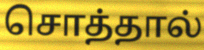
சொத்தால்